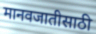
मानवजातीसाठी